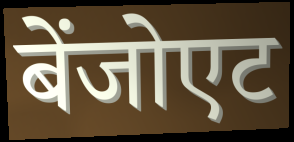
बेंजोएट